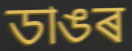
ডাঙৰ